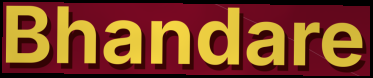
Bhandare